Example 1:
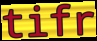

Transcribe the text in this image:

tifr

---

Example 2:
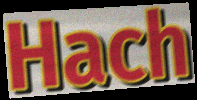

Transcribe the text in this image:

Hach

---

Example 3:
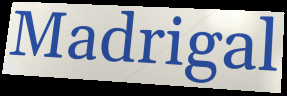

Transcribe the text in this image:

Madrigal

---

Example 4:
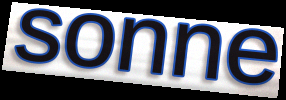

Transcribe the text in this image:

sonne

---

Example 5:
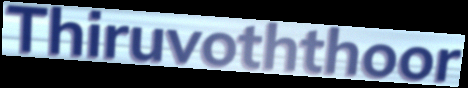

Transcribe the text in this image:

Thiruvoththoor